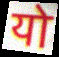
यो